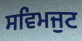
ਸਵਿਮਜੁਟ